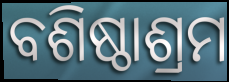
ବଶିଷ୍ଠାଶ୍ରମ